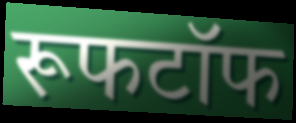
रूफटॉफ